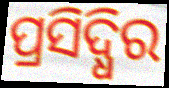
ପ୍ରସିଦ୍ଧିର